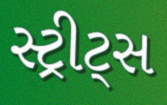
સ્ટ્રીટ્સ